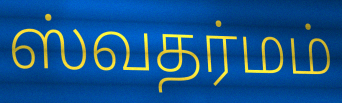
ஸ்வதர்மம்